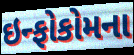
ઇન્ફોકોમના